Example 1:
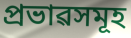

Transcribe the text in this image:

প্ৰভাৱসমূহ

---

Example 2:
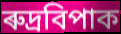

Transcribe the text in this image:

ৰুদ্ৰবিপাক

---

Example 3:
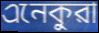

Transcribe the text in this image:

এনেকুৱা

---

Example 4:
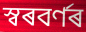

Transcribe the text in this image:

স্বৰবৰ্ণৰ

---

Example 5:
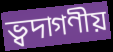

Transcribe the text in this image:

ভ্বদাগণীয়